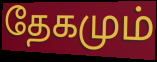
தேகமும்